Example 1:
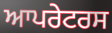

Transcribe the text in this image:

ਆਪਰੇਟਰਸ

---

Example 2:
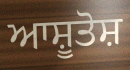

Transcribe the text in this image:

ਆਸ਼ੂਤੋਸ਼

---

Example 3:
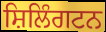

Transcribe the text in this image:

ਸ਼ਿਲਿੰਗਟਨ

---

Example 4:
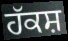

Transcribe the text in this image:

ਹੱਕਸ਼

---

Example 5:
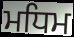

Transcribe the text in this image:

ਮਧਿਮ